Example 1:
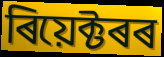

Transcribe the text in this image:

ৰিয়েক্টৰৰ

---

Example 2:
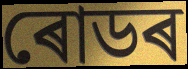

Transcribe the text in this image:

ৰোডৰ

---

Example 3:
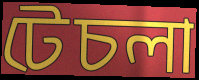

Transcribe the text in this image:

টেচলা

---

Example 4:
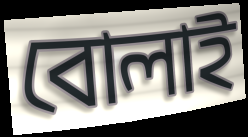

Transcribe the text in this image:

বোলাই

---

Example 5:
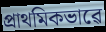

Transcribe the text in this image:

প্ৰাথমিকভাৱে